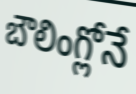
బౌలింగ్లోనే